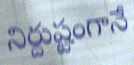
నిర్దుష్టంగానే